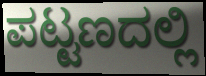
ಪಟ್ಟಣದಲ್ಲಿ